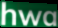
hwa